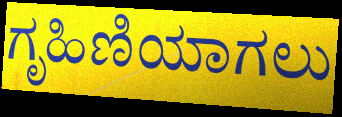
ಗೃಹಿಣಿಯಾಗಲು